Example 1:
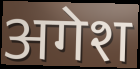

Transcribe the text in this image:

अगेश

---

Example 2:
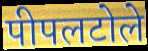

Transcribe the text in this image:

पीपलटोले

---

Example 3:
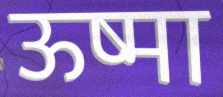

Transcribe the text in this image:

ऊष्‍मा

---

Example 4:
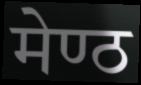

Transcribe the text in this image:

मेण्ठ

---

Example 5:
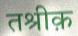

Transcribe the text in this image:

तश्रीक़